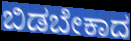
ಬಿಡಬೇಕಾದ